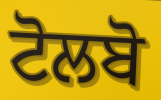
ਟੋਲਬੋ